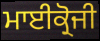
ਮਾਈਕ੍ਰੋਜੀ